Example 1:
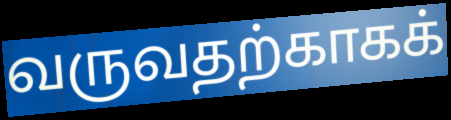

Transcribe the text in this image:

வருவதற்காகக்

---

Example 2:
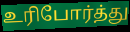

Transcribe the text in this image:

உரிபோர்த்து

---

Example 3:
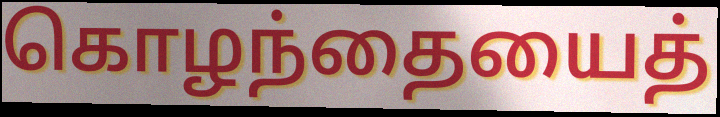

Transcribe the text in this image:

கொழந்தையைத்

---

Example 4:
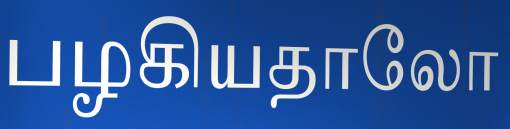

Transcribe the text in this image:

பழகியதாலோ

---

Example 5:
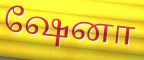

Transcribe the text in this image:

ஷேனா